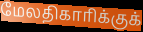
மேலதிகாரிக்குக்